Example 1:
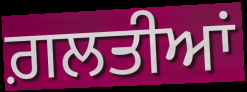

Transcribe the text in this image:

ਗ਼ਲਤੀਆਂ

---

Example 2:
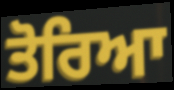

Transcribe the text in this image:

ਤੋਰਿਆ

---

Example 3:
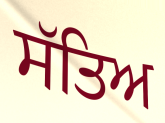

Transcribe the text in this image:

ਸੱਤਿਅ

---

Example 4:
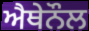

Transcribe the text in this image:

ਐਥੇਨੌਲ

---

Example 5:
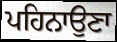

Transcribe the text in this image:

ਪਹਿਨਾਉਣਾ